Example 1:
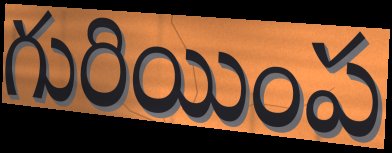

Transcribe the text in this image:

గురియింప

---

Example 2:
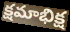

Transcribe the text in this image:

క్షమాభిక్ష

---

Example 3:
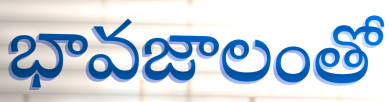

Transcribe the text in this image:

భావజాలంతో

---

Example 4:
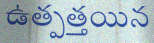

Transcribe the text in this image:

ఉత్పత్తయిన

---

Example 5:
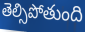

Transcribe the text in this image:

తెల్సిపోతుంది